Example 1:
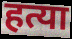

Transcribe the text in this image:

हत्या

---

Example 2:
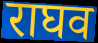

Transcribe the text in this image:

राघव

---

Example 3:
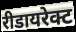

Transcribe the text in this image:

रीडायरेक्ट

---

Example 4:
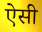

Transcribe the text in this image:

ऐसी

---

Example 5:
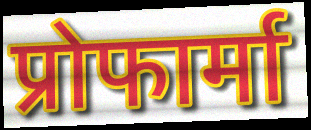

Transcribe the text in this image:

प्रोफार्मा